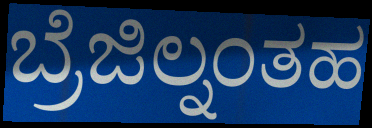
ಬ್ರೆಜಿಲ್ನಂತಹ